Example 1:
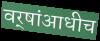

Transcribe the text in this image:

वर्षांआधीच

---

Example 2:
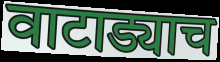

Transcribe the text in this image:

वाटाड्याच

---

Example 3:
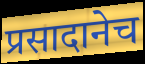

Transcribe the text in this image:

प्रसादानेच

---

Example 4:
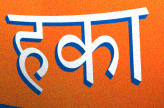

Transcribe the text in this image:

हका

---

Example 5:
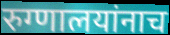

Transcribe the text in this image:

रुग्णालयांनाच